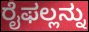
ರೈಫಲ್ಲನ್ನು